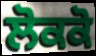
ਲੋਕਕੋ